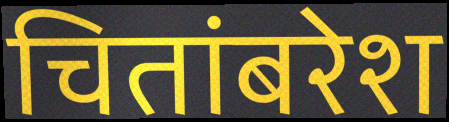
चितांबरेश